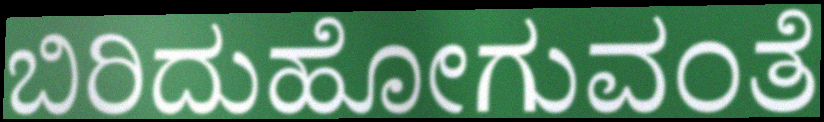
ಬಿರಿದುಹೋಗುವಂತೆ